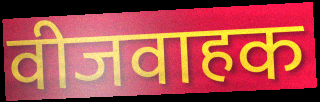
वीजवाहक